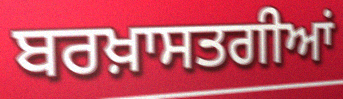
ਬਰਖ਼ਾਸਤਗੀਆਂ